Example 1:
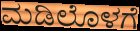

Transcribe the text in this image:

ಮಡಿಲೊಳಗೆ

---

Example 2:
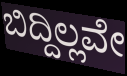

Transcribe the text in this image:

ಬಿದ್ದಿಲ್ಲವೇ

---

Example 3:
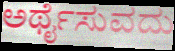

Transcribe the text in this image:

ಅರ್ಥೈಸುವದು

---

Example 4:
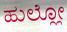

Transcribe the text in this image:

ಹುಲ್ಲೋ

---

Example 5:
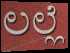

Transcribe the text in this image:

ಲಲ್ಲೆ